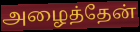
அழைத்தேன்